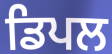
ਡਿਪਲ